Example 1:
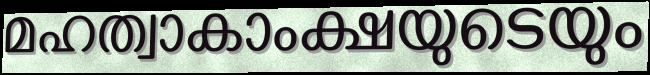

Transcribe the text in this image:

മഹത്വാകാംക്ഷയുടെയും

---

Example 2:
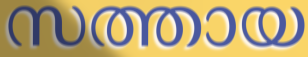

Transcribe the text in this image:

സത്തായ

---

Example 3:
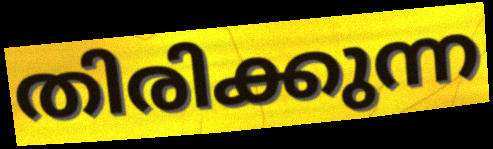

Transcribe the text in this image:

തിരിക്കുന്ന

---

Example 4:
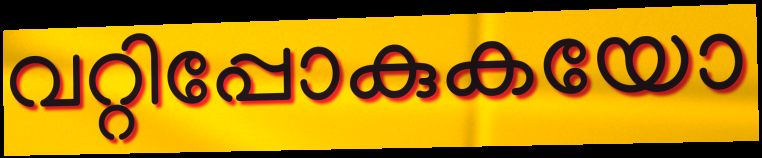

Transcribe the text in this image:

വറ്റിപ്പോകുകയോ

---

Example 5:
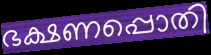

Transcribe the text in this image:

ഭക്ഷണപ്പൊതി